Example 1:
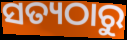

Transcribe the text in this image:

ସତ୍ୟଠାରୁ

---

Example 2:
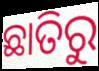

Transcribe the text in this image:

ଛାତିରୁ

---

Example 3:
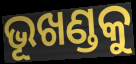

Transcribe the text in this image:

ଭୂଖଣ୍ଡକୁ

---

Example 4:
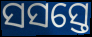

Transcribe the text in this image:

ସସସ୍ତେ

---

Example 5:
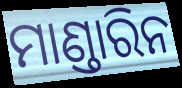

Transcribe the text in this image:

ମାଣ୍ଡାରିନ